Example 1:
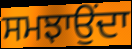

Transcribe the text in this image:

ਸਮਝਾਉਂਦਾ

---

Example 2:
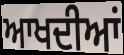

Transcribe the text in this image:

ਆਖਦੀਆਂ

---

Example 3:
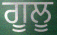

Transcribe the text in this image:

ਗੂਲੂ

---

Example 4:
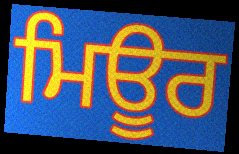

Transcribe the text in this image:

ਮਿਊਰ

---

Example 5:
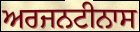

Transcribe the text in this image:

ਅਰਜਨਟੀਨਾਸ